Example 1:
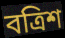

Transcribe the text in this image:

বত্রিশ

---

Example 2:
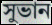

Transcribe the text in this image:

সুভান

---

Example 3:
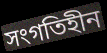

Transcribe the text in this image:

সংগতিহীন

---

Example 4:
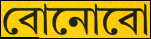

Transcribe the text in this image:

বোনোবো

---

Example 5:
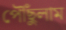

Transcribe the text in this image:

পৌঁছুলাম